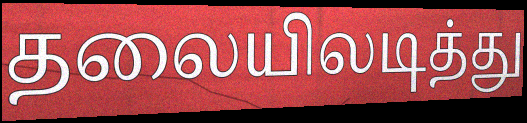
தலையிலடித்து